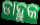
ଡାହୁକ